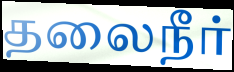
தலைநீர்